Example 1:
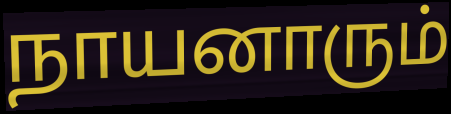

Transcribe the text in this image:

நாயனாரும்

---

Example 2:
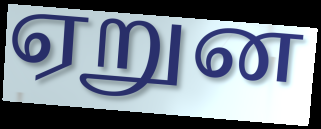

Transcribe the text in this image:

ஏறுன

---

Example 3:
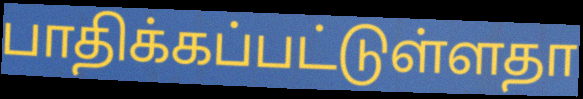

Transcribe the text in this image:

பாதிக்கப்பட்டுள்ளதா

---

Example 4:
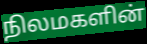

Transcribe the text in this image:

நிலமகளின்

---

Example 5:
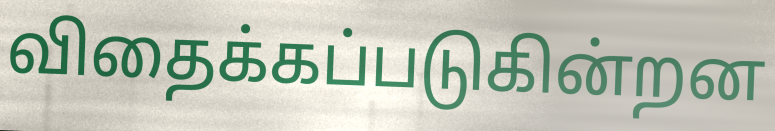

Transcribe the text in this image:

விதைக்கப்படுகின்றன